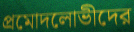
প্রমোদলোভীদের